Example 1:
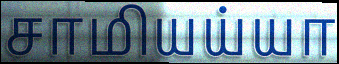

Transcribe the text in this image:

சாமியய்யா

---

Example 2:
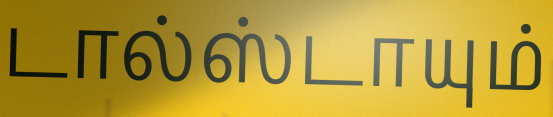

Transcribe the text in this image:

டால்ஸ்டாயும்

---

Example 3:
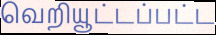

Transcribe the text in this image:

வெறியூட்டப்பட்ட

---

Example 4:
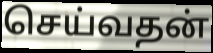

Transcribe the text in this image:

செய்வதன்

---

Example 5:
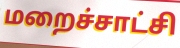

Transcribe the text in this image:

மறைச்சாட்சி